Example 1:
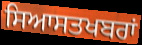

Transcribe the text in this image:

ਸਿਆਸਤਖਬਰਾਂ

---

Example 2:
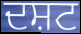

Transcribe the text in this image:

ਦਸ਼ਟ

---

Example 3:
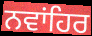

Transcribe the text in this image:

ਨਵਾਂਹਿਰ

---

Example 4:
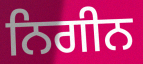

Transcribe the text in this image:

ਨਿਗੀਨ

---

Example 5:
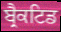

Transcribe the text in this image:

ਬ੍ਰੈਕਟਿਡ